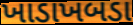
ખાડાખબડા